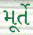
મૂર્તે